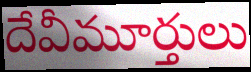
దేవీమూర్తులు